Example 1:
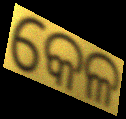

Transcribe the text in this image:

କେଳ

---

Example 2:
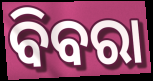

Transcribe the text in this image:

ବିବରା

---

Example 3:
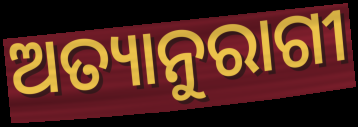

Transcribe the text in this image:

ଅତ୍ୟାନୁରାଗୀ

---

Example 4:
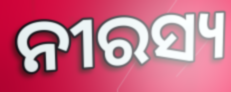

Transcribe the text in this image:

ନୀରସ୍ୟ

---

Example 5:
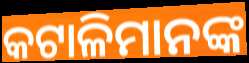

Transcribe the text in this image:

କଟାଳିମାନଙ୍କ